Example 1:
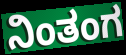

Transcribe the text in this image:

ನಿಂತಂಗ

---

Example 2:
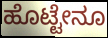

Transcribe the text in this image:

ಹೊಟ್ಟೇನೂ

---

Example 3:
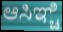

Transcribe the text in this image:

ಆಸಿಞ್ಚಿ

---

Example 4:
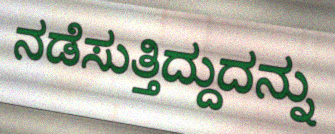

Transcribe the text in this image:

ನಡೆಸುತ್ತಿದ್ದುದನ್ನು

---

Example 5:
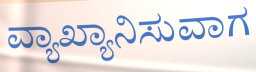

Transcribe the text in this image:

ವ್ಯಾಖ್ಯಾನಿಸುವಾಗ